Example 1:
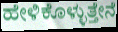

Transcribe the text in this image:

ಹೇಳಿಕೊಳ್ಳುತ್ತೇನೆ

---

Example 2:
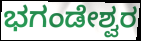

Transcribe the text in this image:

ಭಗಂಡೇಶ್ವರ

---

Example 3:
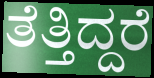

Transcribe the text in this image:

ತೆತ್ತಿದ್ದರೆ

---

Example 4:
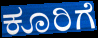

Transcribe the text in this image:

ಕೂರಿಗೆ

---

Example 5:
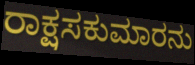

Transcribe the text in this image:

ರಾಕ್ಷಸಕುಮಾರನು